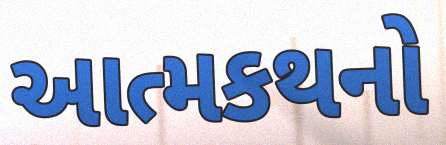
આત્મકથનો